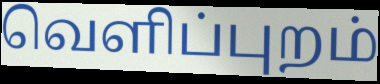
வெளிப்புறம்